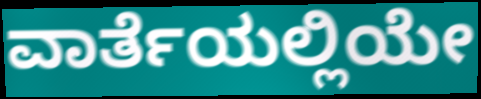
ವಾರ್ತೆಯಲ್ಲಿಯೇ